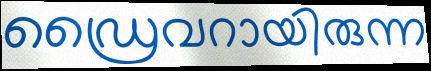
ഡ്രൈവറായിരുന്ന